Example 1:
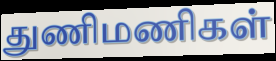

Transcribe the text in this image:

துணிமணிகள்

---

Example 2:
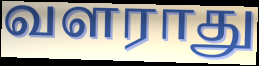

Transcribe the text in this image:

வளராது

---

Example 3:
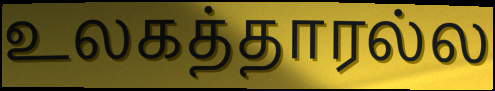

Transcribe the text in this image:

உலகத்தாரல்ல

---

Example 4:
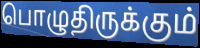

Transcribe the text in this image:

பொழுதிருக்கும்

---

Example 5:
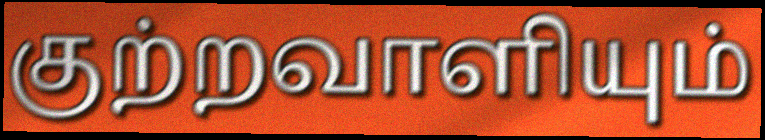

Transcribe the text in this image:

குற்றவாளியும்